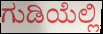
ಗುಡಿಯೆಲ್ಲಿ